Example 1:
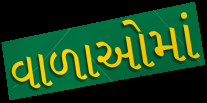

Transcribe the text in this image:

વાળાઓમાં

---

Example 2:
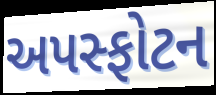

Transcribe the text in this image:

અપસ્ફોટન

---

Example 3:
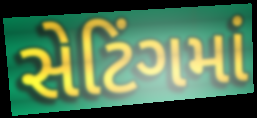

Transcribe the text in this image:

સેટિંગમાં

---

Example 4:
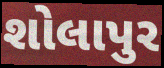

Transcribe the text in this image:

શોલાપુર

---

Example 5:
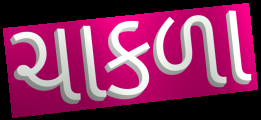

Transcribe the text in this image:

ચાકળા